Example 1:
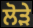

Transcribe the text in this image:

ਲੋੜੇ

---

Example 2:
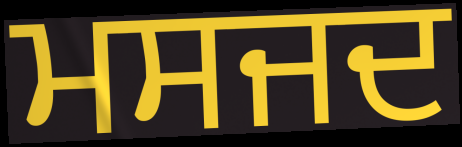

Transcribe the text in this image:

ਮਸਜਦ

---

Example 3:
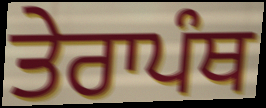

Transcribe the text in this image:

ਤੇਰਾਪੰਥ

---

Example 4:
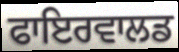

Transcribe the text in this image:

ਫਾਇਰਵਾਲਡ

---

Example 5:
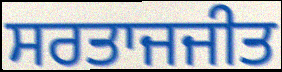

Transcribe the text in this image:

ਸਰਤਾਜਜੀਤ